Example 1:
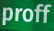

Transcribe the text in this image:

proff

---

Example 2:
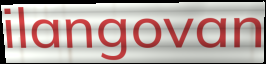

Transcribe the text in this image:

ilangovan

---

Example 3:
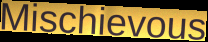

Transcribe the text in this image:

Mischievous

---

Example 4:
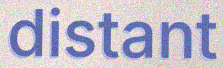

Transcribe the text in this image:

distant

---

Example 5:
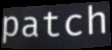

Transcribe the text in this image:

patch